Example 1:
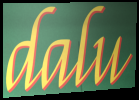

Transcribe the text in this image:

dalu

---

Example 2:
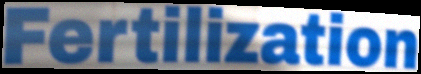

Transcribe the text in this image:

Fertilization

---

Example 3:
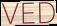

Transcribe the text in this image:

VED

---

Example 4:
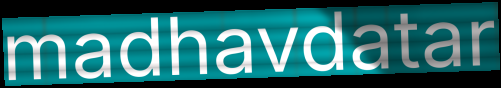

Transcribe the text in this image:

madhavdatar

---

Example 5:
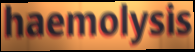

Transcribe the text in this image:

haemolysis